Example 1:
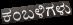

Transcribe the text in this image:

ಕಂಬಳಿಗಳು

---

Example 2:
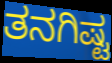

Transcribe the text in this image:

ತನಗಿಷ್ಟ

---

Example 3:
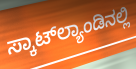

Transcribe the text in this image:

ಸ್ಕಾಟ್‌ಲ್ಯಾಂಡಿನಲ್ಲಿ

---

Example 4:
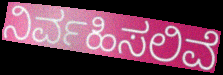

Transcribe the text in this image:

ನಿರ್ವಹಿಸಲಿವೆ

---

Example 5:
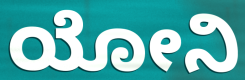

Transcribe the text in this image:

ಯೋನಿ